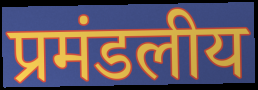
प्रमंडलीय